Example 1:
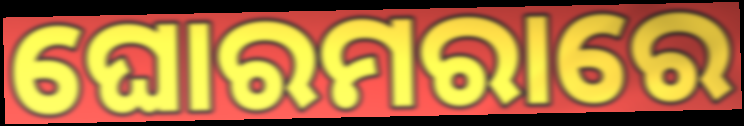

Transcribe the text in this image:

ଘୋରମରାରେ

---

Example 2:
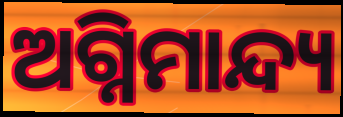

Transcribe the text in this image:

ଅଗ୍ନିମାନ୍ଦ୍ୟ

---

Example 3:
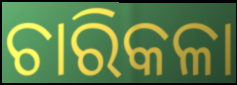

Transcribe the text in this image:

ଚାରିକଳା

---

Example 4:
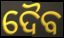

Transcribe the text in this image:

ଦୈବ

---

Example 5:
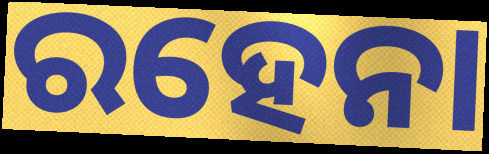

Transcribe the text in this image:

ରହେନା